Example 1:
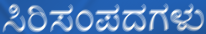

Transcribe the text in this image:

ಸಿರಿಸಂಪದಗಳು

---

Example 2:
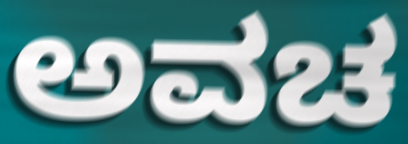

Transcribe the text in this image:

ಅವಚ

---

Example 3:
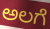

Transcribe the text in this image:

ಅಲಗೆ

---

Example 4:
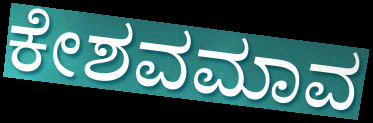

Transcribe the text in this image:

ಕೇಶವಮಾವ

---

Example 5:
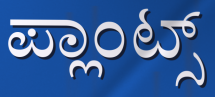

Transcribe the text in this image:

ಪ್ಲಾಂಟ್ಸ್